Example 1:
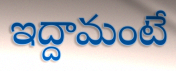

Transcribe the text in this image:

ఇద్దామంటే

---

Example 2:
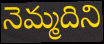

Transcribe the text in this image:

నెమ్మదిని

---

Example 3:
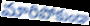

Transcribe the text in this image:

మారిపోకుండా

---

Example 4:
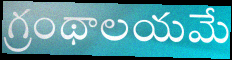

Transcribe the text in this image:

గ్రంథాలయమే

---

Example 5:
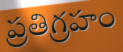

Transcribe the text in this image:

ప్రతిగ్రహం